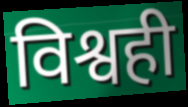
विश्वही